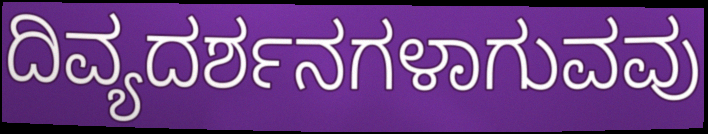
ದಿವ್ಯದರ್ಶನಗಳಾಗುವವು